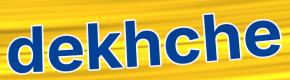
dekhche